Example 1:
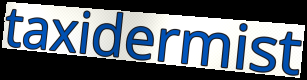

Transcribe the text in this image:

taxidermist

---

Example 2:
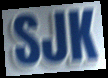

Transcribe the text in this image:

SJK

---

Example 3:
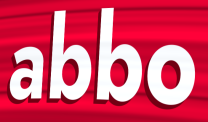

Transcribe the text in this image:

abbo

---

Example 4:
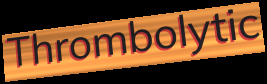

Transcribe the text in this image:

Thrombolytic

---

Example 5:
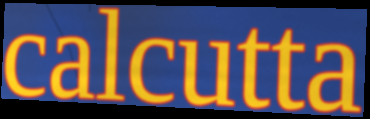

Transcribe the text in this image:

calcutta